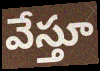
వేస్తూ